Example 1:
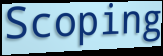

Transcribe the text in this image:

Scoping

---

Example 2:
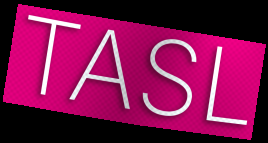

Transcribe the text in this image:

TASL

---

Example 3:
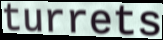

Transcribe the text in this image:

turrets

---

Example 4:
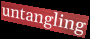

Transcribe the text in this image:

untangling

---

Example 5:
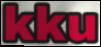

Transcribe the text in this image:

kku